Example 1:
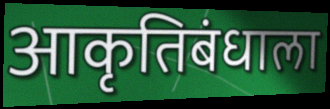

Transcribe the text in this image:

आकृतिबंधाला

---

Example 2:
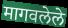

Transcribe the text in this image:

मागवलेले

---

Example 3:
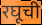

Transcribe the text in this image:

रघूची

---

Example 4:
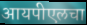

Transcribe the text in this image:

आयपीएलचा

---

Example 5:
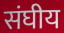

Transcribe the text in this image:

संघीय